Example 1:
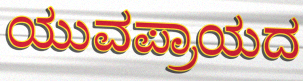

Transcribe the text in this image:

ಯುವಪ್ರಾಯದ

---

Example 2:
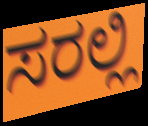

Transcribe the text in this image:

ಸರಲ್ಲಿ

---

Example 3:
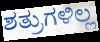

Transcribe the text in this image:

ಶತ್ರುಗಳಿಲ್ಲ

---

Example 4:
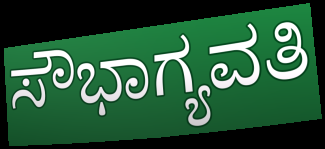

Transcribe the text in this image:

ಸೌಭಾಗ್ಯವತಿ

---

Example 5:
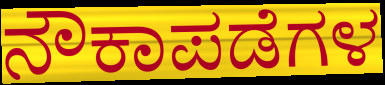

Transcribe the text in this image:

ನೌಕಾಪಡೆಗಳ